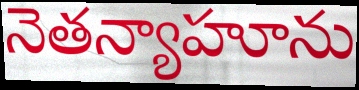
నెతన్యాహూను